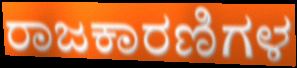
ರಾಜಕಾರಣಿಗಳ